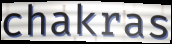
chakras